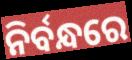
ନିର୍ବନ୍ଧରେ